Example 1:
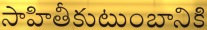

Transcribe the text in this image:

సాహితీకుటుంబానికి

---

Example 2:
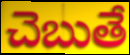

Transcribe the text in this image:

చెబుతే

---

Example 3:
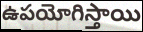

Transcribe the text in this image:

ఉపయోగిస్తాయి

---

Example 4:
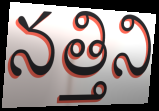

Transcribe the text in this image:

నత్తిని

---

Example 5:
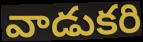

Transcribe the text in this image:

వాడుకరి